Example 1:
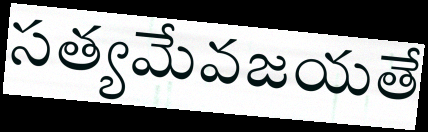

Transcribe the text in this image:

సత్యమేవజయతే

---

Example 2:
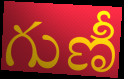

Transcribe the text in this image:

గుణీ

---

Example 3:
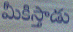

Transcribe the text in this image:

మీకిస్తాడు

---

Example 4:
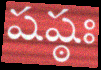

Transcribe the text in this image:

షష్ఠః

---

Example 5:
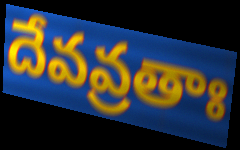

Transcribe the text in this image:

దేవవ్రతాః